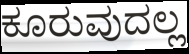
ಕೂರುವುದಲ್ಲ